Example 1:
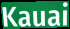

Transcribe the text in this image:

Kauai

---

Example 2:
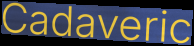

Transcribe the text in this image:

Cadaveric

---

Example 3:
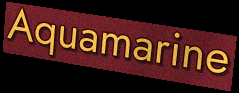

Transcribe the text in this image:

Aquamarine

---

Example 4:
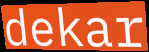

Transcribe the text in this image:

dekar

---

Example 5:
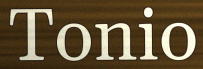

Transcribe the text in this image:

Tonio